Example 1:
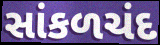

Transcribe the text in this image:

સાંકળચંદ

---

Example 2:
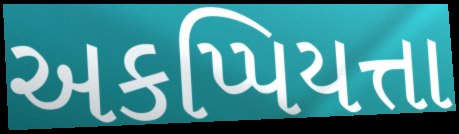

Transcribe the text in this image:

અકપ્પિયત્તા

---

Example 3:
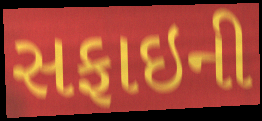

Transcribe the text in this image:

સફાઇની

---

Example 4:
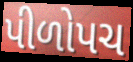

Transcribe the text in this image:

પીળોપચ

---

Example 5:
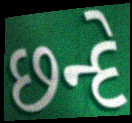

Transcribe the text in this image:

છન્દે